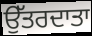
ਉੱਤਰਦਾਤਾ